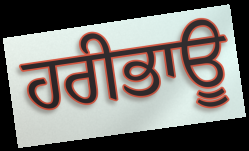
ਹਰੀਭਾਊ